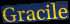
Gracile